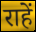
राहें